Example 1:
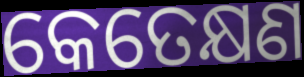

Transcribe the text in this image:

କେତେକ୍ଷଣ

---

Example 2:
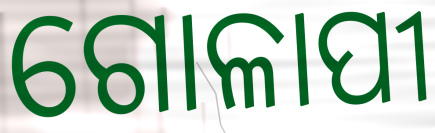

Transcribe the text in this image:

ଗୋଳାପୀ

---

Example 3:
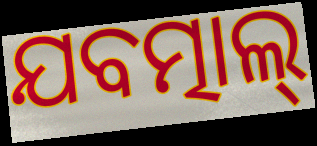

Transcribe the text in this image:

ଯବତ୍ମାଲ୍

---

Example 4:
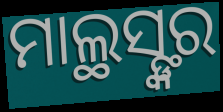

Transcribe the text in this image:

ମାଲ୍ଥସ୍ଙ୍କର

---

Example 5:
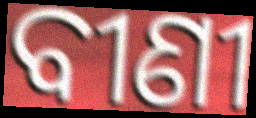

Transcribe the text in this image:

ବୀଣୀ